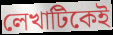
লেখাটিকেই